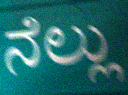
ನೆಲ್ಲು